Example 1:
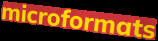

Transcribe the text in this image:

microformats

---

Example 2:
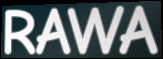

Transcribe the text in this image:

RAWA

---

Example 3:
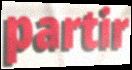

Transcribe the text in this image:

partir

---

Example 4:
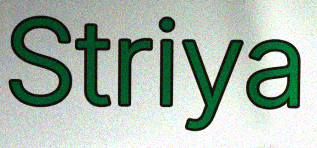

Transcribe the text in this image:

Striya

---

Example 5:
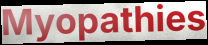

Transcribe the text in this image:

Myopathies